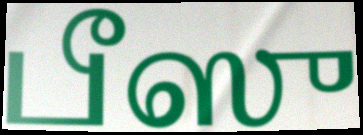
பீஸு